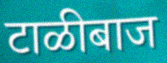
टाळीबाज